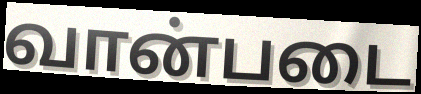
வான்படை